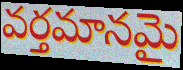
వర్తమానమై